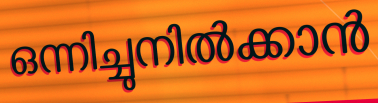
ഒന്നിച്ചുനിൽക്കാൻ